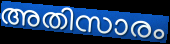
അതിസാരം